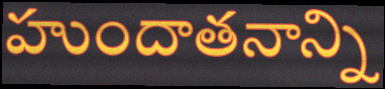
హుందాతనాన్ని